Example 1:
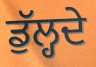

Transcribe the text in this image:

ਡੁੱਲ੍ਹਦੇ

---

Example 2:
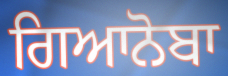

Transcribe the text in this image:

ਗਿਆਨੋਬਾ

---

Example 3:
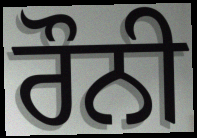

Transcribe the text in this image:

ਰੌਨੀ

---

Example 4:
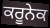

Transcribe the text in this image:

ਕਰੂਨੇਕ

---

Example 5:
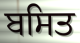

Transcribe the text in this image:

ਬਸਿਤ